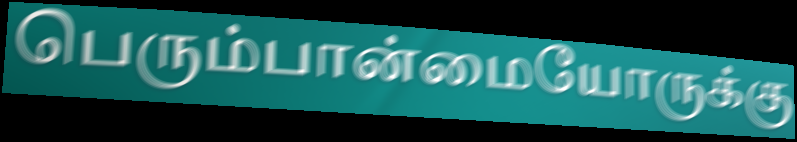
பெரும்பான்மையோருக்கு